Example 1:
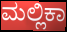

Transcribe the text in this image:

ಮಲ್ಲಿಕಾ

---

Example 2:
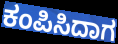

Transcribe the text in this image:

ಕಂಪಿಸಿದಾಗ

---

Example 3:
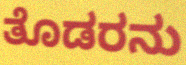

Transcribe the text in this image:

ತೊಡರನು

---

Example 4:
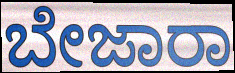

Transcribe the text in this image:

ಬೇಜಾರಾ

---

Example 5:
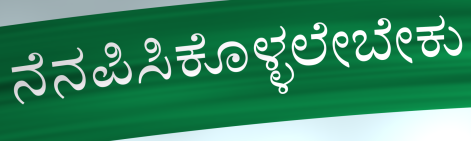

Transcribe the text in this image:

ನೆನಪಿಸಿಕೊಳ್ಳಲೇಬೇಕು